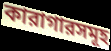
কারাগারসমূহ